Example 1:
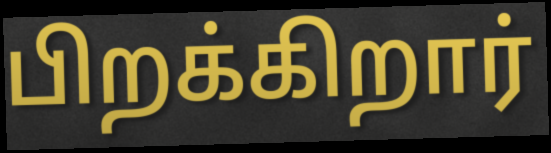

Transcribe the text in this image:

பிறக்கிறார்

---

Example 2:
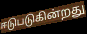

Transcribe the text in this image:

ஈடுபடுகின்றது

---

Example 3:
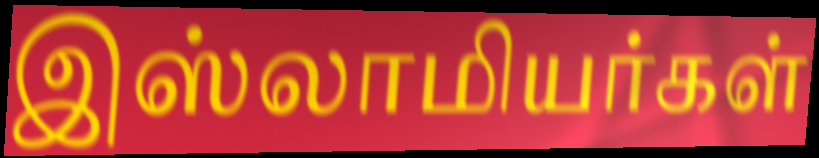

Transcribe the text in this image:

இஸ்லாமியர்கள்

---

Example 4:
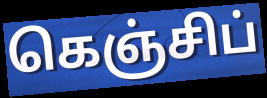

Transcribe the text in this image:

கெஞ்சிப்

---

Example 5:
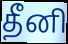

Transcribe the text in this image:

தீனி